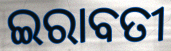
ଇରାବତୀ